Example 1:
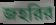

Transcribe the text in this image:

জহরির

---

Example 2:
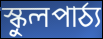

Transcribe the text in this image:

স্কুলপাঠ্য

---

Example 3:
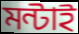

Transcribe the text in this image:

মন্টাই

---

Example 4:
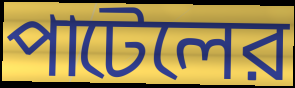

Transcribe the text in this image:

পাটেলের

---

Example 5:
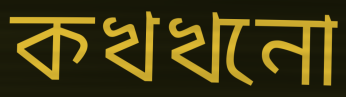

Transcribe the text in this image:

কখখনো